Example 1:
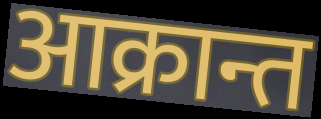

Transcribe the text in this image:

आक्रान्त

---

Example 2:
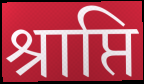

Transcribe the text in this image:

श्राप्ति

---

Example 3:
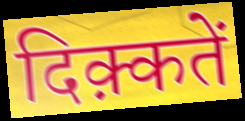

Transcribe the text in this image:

दिक़्कतें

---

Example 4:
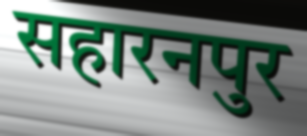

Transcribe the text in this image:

सहारनपुर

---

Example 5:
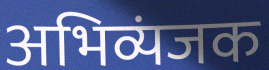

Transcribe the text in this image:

अभिव्यंजक